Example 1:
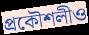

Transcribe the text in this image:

প্রকৌশলীও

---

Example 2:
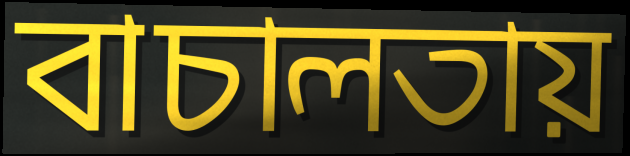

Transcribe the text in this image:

বাচালতায়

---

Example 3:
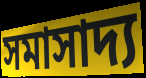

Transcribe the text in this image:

সমাসাদ্য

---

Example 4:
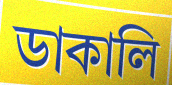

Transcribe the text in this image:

ডাকালি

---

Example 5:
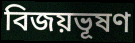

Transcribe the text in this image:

বিজয়ভূষণ